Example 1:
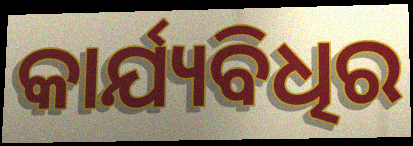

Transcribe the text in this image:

କାର୍ଯ୍ୟବିଧିର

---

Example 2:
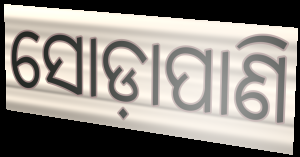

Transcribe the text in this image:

ସୋଡ଼ାପାଣି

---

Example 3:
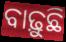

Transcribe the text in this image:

ବାଢ଼ୁଛି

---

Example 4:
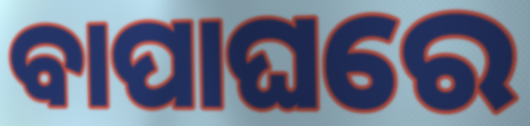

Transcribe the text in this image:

ବାପାଘରେ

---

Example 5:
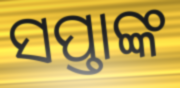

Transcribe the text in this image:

ସପ୍ତାଙ୍କ